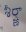
శీర్ష్ణా